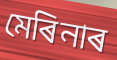
মেৰিনাৰ